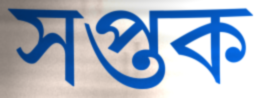
সপ্তক